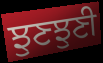
ਝੁਣਝੁਣੀ